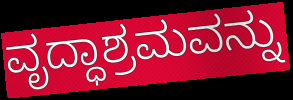
ವೃದ್ಧಾಶ್ರಮವನ್ನು